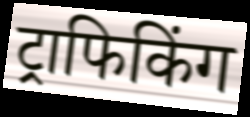
ट्राफिकिंग